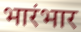
भारंभार